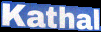
Kathal